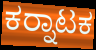
ಕರ‍್ನಾಟಕ